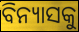
ବିନ୍ୟାସକୁ